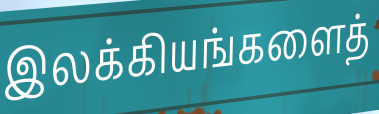
இலக்கியங்களைத்